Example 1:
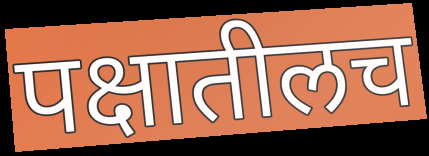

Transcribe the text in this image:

पक्षातीलच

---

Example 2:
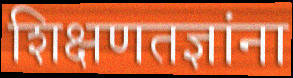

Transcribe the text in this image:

शिक्षणतज्ञांना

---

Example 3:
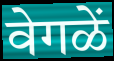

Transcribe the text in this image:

वेगळें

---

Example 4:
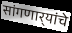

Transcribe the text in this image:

सांगणार्‍यांचे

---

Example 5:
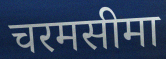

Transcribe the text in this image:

चरमसीमा